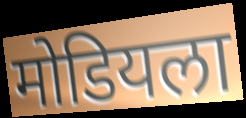
मोडियला